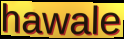
hawale